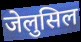
जेलुसिल